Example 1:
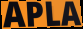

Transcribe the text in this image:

APLA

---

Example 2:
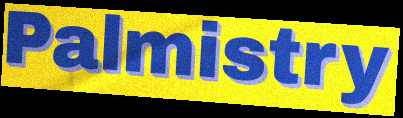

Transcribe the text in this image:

Palmistry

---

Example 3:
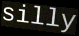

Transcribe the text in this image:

silly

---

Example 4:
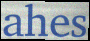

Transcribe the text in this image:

ahes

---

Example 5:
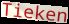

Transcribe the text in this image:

Tieken